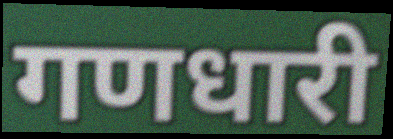
गणधारी